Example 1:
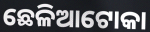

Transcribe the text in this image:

ଛେଳିଆଟୋକା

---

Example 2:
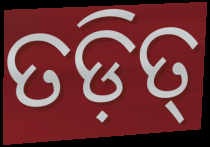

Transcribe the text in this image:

ତଡ଼ିତ୍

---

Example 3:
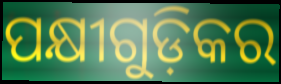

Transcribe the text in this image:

ପକ୍ଷୀଗୁଡ଼ିକର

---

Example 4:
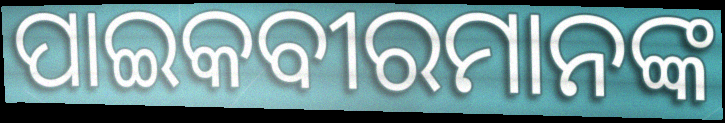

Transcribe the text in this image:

ପାଇକବୀରମାନଙ୍କ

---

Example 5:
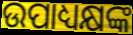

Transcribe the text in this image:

ଉପାଧ୍ୟକ୍ଷଙ୍କ